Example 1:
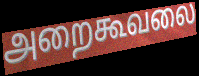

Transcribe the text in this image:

அறைகூவலை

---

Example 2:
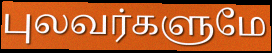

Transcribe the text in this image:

புலவர்களுமே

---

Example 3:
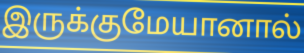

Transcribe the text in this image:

இருக்குமேயானால்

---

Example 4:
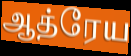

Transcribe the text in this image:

ஆத்ரேய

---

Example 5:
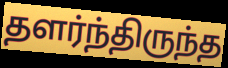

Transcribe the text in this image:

தளர்ந்திருந்த